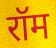
रॉम